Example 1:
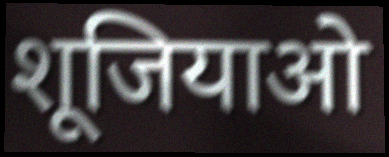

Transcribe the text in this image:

शूजियाओ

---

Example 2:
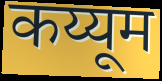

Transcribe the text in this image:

कय्यूम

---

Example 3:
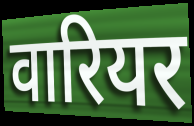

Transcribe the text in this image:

वारियर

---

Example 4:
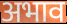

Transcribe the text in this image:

अभाव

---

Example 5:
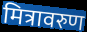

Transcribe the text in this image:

मित्रावरुण